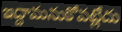
ఇద్దామనుకోవట్లేదు